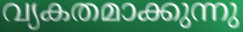
വ്യകതമാക്കുന്നു